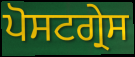
ਪੋਸਟਗ੍ਰੇਸ